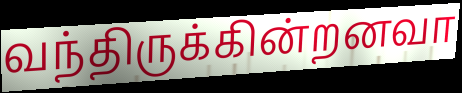
வந்திருக்கின்றனவா